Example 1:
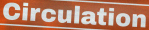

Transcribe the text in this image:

Circulation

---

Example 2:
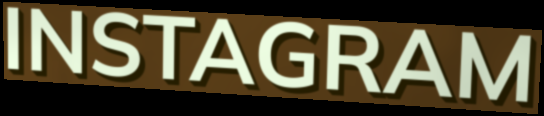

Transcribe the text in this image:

INSTAGRAM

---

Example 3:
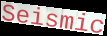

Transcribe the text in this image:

Seismic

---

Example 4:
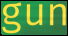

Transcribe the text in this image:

gun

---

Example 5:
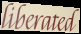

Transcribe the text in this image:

liberated